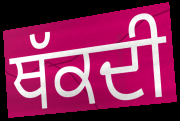
ਥੱਕਦੀ